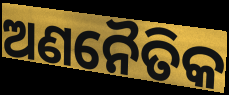
ଅଣନୈତିକ